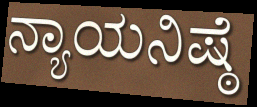
ನ್ಯಾಯನಿಷ್ಠೆ